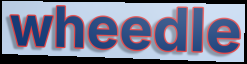
wheedle